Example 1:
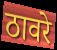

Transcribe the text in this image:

ठावरे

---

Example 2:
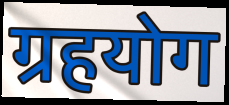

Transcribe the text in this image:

ग्रहयोग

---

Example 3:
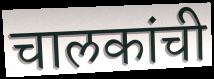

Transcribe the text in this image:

चालकांची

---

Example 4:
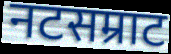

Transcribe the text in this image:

नटसम्राट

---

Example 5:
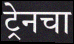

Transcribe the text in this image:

ट्रेनचा